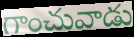
గాంచువాడు